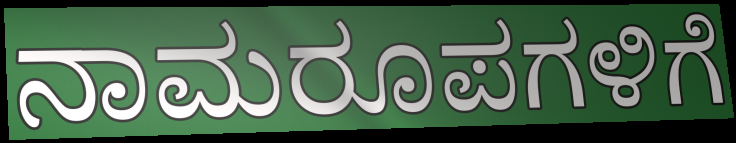
ನಾಮರೂಪಗಳಿಗೆ